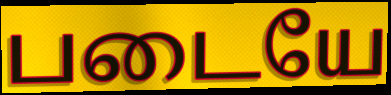
படையே